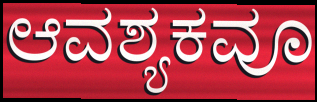
ಆವಶ್ಯಕವೂ